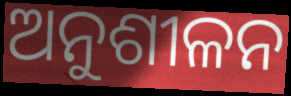
ଅନୁଶୀଳନ